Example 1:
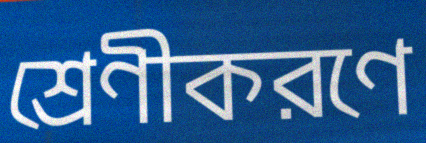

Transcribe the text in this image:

শ্রেণীকরণে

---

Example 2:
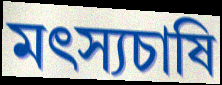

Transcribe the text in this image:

মৎস্যচাষি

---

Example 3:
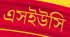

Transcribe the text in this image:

এসইউসি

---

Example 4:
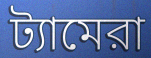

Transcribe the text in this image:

ট্যামেরা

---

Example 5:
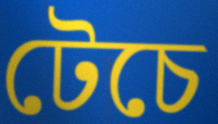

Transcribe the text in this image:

টেচে